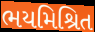
ભયમિશ્રિત